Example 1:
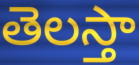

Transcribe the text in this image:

తెలస్తా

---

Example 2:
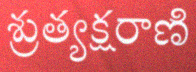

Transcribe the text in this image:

శ్రుత్యక్షరాణి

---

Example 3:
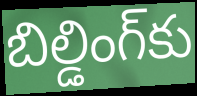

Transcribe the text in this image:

బిల్డింగ్‌కు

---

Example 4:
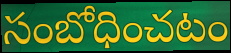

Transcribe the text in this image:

సంబోధించటం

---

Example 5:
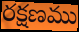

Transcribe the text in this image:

రక్షణము